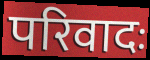
परिवादः